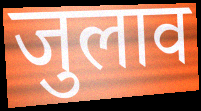
जुलाव